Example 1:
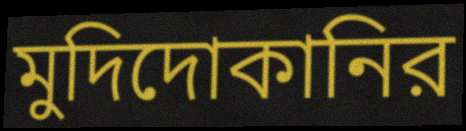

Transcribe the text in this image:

মুদিদোকানির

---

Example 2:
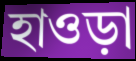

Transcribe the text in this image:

হাওড়া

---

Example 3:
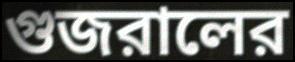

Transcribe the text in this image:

গুজরালের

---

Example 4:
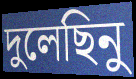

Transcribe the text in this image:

দুলেছিনু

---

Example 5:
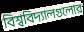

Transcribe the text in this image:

বিশ্ববিদ্যালগুলোর